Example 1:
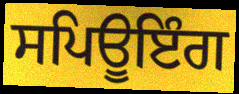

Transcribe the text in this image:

ਸਪਿਊਇੰਗ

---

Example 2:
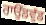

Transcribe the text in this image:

ਰਾਉਂਡਵੁੱਡ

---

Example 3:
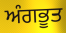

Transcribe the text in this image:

ਅੰਗਭੂਤ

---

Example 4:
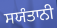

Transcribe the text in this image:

ਸਯੰਤਾਨੀ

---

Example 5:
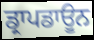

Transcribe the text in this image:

ਡ੍ਰਾਪਡਾਊਨ